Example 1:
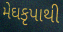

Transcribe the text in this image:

મેઘકૃપાથી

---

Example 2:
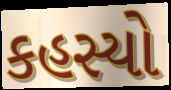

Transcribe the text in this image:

કહસ્યો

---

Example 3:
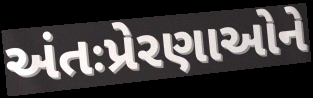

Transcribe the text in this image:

અંતઃપ્રેરણાઓને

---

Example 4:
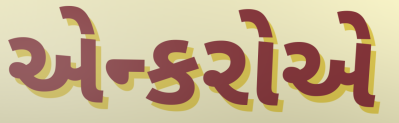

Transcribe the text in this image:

એન્કરોએ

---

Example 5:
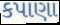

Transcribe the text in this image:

કપાણા